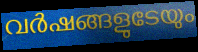
വർഷങ്ങളുടേയും